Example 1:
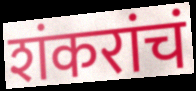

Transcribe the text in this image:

शंकरांचं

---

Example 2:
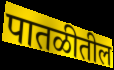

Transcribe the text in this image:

पातळीतील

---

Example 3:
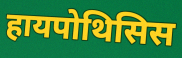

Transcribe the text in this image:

हायपोथिसिस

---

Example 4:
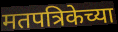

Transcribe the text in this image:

मतपत्रिकेच्या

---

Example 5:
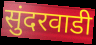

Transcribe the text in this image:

सुंदरवाडी